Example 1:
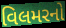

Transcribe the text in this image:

વિલમરનો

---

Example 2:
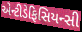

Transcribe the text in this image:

એન્ટીડેફિસિયન્સી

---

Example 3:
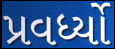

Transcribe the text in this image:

પ્રવર્ધ્યો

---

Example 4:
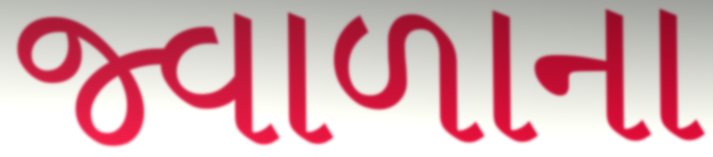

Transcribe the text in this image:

જ્વાળાના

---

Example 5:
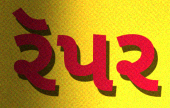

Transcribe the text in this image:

રૅપર